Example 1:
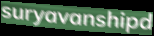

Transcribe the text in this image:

suryavanshipd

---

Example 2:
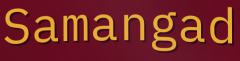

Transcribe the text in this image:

Samangad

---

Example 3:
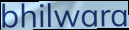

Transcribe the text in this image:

bhilwara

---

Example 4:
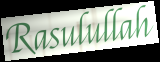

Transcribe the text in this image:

Rasulullah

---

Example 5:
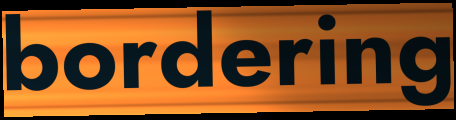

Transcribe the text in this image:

bordering